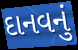
દાનવનું